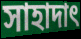
সাহাদাৎ